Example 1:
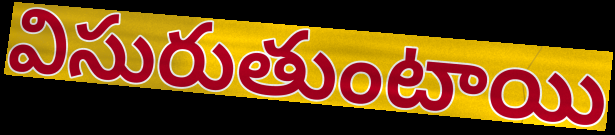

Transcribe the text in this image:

విసురుతుంటాయి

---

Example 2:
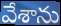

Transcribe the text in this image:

వేశాను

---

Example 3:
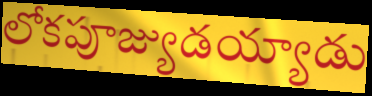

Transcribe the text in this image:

లోకపూజ్యుడయ్యాడు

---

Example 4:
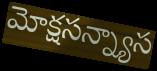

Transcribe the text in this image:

మోక్షసన్న్యాస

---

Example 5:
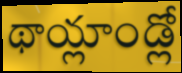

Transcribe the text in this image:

థాయ్లాండ్లో